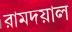
রামদয়াল